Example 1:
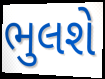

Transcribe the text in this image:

ભુલશે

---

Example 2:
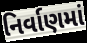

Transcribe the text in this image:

નિર્વાણમાં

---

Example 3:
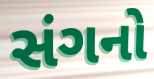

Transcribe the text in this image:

સંગનો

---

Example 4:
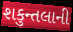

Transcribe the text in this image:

શકુન્તલાની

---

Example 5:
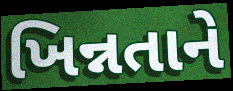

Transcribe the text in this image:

ખિન્નતાને